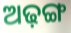
ଅଢ଼ଙ୍ଗ